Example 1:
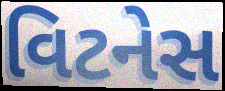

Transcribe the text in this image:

વિટનેસ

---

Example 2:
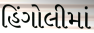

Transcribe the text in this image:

હિંગોલીમાં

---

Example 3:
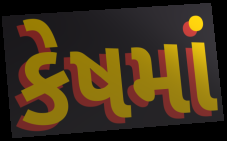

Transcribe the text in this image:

કેષમાં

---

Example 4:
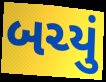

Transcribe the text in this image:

બચ્યું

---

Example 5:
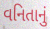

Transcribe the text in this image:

વનિતાનું